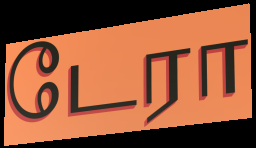
டேரா